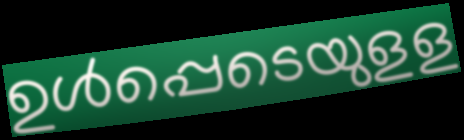
ഉൾപ്പെടെയുളള